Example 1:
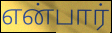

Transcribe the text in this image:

என்பார்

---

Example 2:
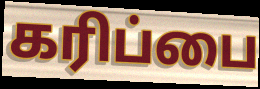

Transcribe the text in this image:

கரிப்பை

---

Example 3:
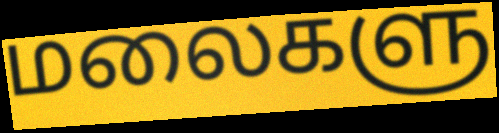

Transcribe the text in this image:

மலைகளு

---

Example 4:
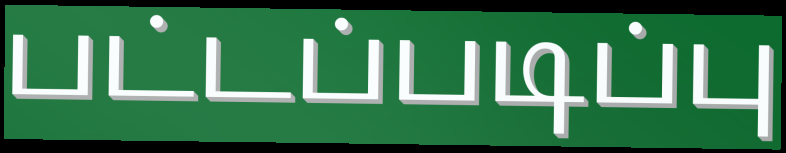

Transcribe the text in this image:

பட்டப்படிப்பு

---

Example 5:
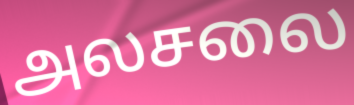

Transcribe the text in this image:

அலசலை